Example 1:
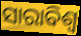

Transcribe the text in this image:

ସାରାବିଶ୍ବ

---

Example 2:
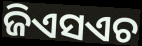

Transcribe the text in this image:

ଜିଏସଏଚ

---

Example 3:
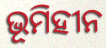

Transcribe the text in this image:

ଭୂମିହୀନ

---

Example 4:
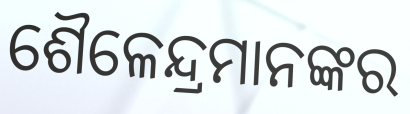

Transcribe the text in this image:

ଶୈଳେନ୍ଦ୍ରମାନଙ୍କର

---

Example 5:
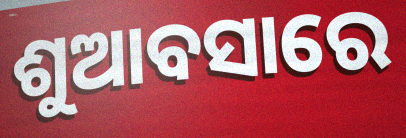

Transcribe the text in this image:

ଶୁଆବସାରେ